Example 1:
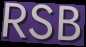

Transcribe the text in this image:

RSB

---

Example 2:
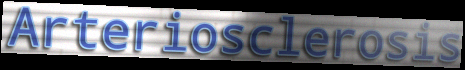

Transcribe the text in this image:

Arteriosclerosis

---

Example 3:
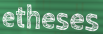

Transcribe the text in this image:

etheses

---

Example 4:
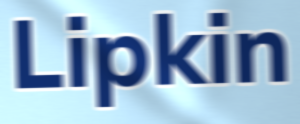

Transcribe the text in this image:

Lipkin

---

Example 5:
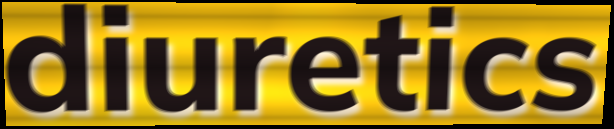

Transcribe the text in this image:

diuretics